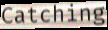
Catching